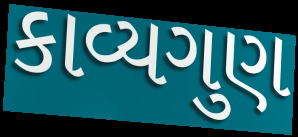
કાવ્યગુણ